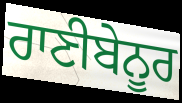
ਰਾਣੀਬੇਨੂਰ